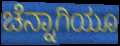
ಚೆನ್ನಾಗಿಯೂ